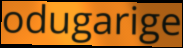
odugarige